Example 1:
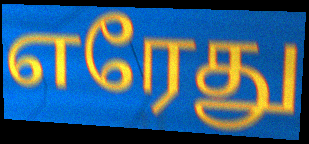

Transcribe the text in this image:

எரேது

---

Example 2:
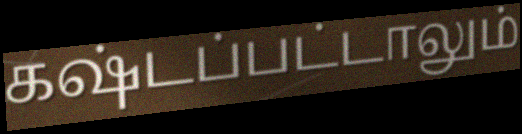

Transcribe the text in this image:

கஷ்டப்பட்டாலும்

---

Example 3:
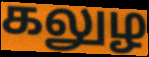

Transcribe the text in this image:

கலுழ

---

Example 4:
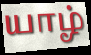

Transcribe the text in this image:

யாழ்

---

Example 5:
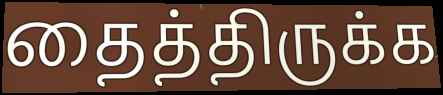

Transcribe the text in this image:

தைத்திருக்க